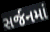
સર્જનમાં